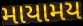
માયામય